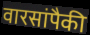
वारसांपैकी